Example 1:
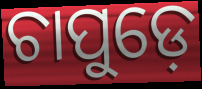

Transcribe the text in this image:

ଚାପୁଡ଼େ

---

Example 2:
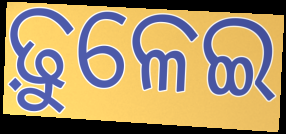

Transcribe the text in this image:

ଢ଼ୁଳେଇ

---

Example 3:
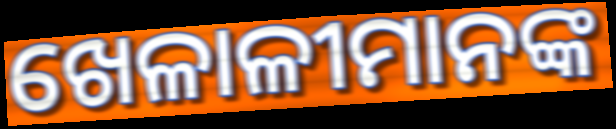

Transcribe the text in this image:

ଖେଳାଳୀମାନଙ୍କ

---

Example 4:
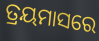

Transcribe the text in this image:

ତ୍ରୟମାସରେ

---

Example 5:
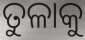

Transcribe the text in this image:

ତୁଳାକୁ